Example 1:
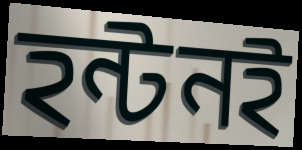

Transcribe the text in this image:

হন্টনই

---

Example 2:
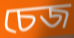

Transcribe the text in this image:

চেজ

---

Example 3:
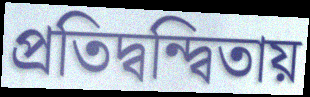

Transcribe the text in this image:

প্রতিদ্বন্দ্বিতায়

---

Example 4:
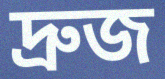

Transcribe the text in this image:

দ্রুজ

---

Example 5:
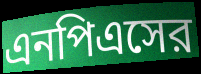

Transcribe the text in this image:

এনপিএসের